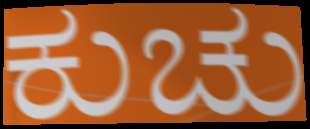
ಕುಚು